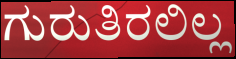
ಗುರುತಿರಲಿಲ್ಲ